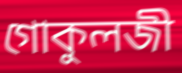
গোকুলজী